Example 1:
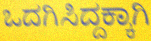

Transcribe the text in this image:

ಒದಗಿಸಿದ್ದಕ್ಕಾಗಿ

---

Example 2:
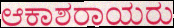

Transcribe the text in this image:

ಆಕಾಶರಾಯರು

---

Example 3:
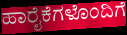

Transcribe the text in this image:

ಹಾರೈಕೆಗಳೊಂದಿಗೆ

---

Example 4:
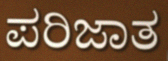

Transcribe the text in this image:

ಪರಿಜಾತ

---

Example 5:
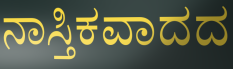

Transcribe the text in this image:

ನಾಸ್ತಿಕವಾದದ